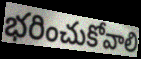
భరించుకోవాలి